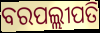
ବରପଲ୍ଲୀପତି